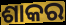
ଶାକର